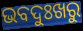
ଭବଦୁଃଖରୁ